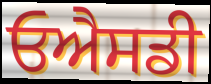
ਓਐਸਡੀ